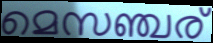
മെസഞ്ചര്